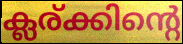
ക്ലര്ക്കിന്റെ